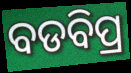
ବଡବିପ୍ର